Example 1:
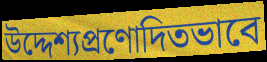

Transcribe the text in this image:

উদ্দেশ্যপ্রণোদিতভাবে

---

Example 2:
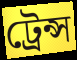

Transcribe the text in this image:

ট্রেন্স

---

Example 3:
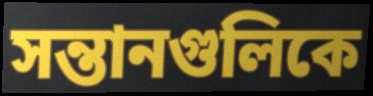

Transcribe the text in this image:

সন্তানগুলিকে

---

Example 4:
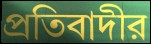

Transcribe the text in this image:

প্রতিবাদীর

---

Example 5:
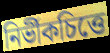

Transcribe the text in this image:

নির্ভীকচিত্তে